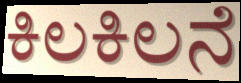
ಕಿಲಕಿಲನೆ